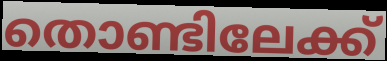
തൊണ്ടിലേക്ക്